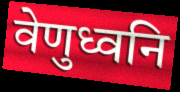
वेणुध्वनि